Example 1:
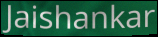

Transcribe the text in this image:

Jaishankar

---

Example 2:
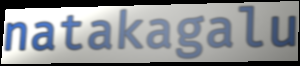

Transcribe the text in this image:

natakagalu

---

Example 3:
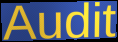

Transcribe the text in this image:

Audit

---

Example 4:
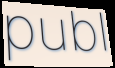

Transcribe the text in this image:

publ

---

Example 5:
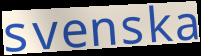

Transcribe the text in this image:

svenska